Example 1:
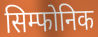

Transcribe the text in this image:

सिम्फोनिक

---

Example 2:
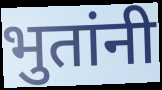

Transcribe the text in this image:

भुतांनी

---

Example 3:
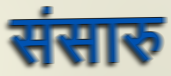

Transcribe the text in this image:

संसारु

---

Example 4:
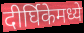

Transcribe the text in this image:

दीर्घिकेमध्ये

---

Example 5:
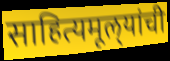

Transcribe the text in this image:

साहित्यमूल्यांची